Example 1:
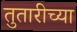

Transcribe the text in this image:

तुतारीच्या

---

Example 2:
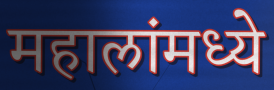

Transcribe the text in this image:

महालांमध्ये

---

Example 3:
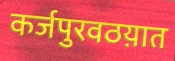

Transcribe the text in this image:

कर्जपुरवठय़ात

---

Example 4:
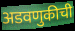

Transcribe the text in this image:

अडवणुकीची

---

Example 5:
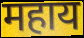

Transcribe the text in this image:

महाय